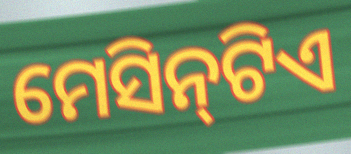
ମେସିନ୍‌ଟିଏ